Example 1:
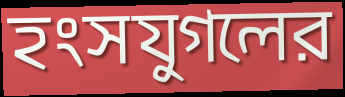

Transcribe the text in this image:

হংসযুগলের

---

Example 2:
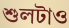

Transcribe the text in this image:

শুলটাও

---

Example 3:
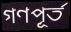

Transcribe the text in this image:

গণপূর্ত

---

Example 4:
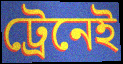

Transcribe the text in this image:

ট্রেনেই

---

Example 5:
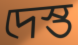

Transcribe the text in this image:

দেস্ত